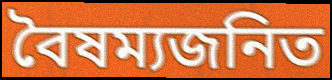
বৈষম্যজনিত